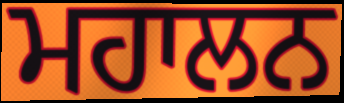
ਮਹਾਲਨ